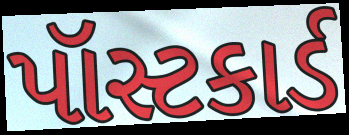
પૉસ્ટકાર્ડ